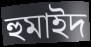
হুমাইদ